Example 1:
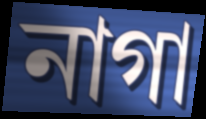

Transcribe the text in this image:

নাগা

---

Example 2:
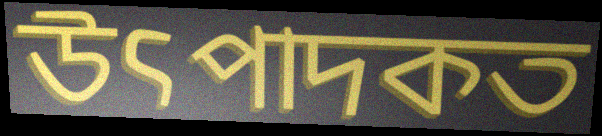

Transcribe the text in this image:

উৎপাদকত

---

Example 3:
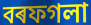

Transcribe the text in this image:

বৰফগলা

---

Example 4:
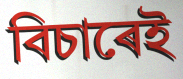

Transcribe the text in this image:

বিচাৰেই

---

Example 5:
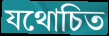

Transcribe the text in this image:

যথোচিত